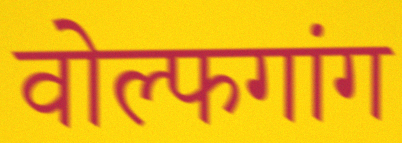
वोल्फगांग